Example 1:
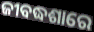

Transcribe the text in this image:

ଜୀବଦ୍ଧଶାରେ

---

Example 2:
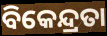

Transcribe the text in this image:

ବିକେନ୍ଦ୍ରତା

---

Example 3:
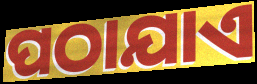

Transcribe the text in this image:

ପଠାଯାଏ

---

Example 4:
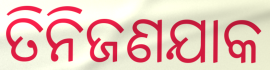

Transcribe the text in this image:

ତିନିଜଣଯାକ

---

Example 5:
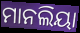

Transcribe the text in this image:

ମାନଲିୟା